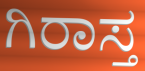
ಗಿರಾಸ್ತ